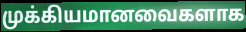
முக்கியமானவைகளாக